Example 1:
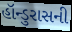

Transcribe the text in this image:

હૉન્ડુરાસની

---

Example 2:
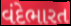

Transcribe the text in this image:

વંદેભારત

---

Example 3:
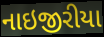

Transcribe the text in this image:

નાઇજીરીયા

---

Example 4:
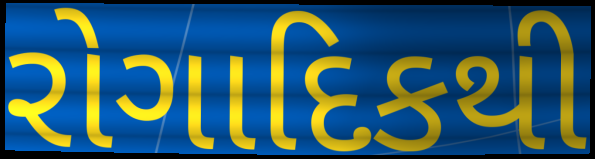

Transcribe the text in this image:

રોગાદિકથી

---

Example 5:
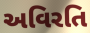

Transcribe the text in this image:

અવિરતિ